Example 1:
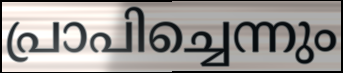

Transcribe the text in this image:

പ്രാപിച്ചെന്നും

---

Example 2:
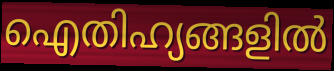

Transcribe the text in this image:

ഐതിഹ്യങ്ങളിൽ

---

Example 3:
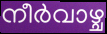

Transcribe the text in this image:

നീർവാഴ്ച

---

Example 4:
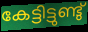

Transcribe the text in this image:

കേട്ടിട്ടുണ്ടു്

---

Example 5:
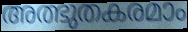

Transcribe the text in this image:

അത്ഭുതകരമാം